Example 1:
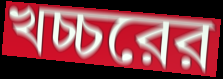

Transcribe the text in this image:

খচ্চরের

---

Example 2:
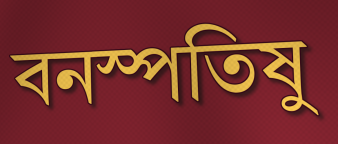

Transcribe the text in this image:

বনস্পতিষু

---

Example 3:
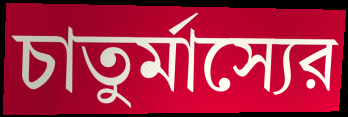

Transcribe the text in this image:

চাতুর্মাস্যের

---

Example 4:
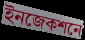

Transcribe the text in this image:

ইনজেকশনে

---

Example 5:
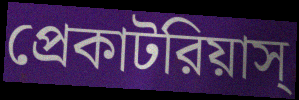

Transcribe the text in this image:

প্রেকাটরিয়াস্